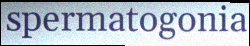
spermatogonia